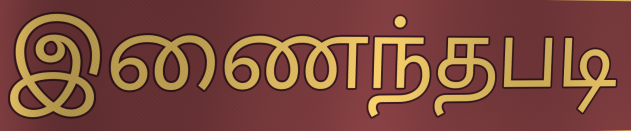
இணைந்தபடி